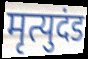
मृत्युदंड